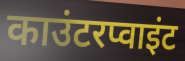
काउंटरप्वाइंट